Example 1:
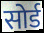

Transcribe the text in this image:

सोर्ड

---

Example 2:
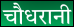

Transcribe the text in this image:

चौधरानी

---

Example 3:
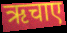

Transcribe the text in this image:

ऋचाए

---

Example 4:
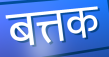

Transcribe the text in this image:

बत्तक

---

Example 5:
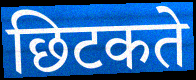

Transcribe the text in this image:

छिटकते